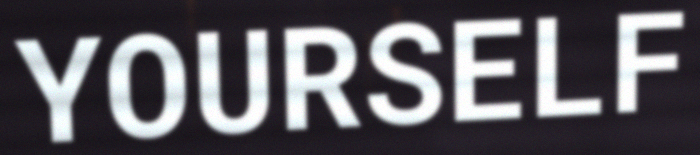
YOURSELF